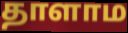
தாளாம